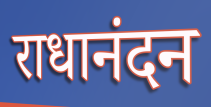
राधानंदन